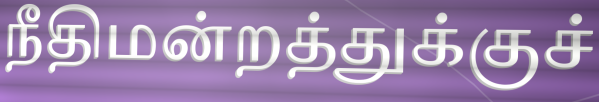
நீதிமன்றத்துக்குச்